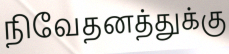
நிவேதனத்துக்கு